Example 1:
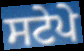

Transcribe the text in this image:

ਸਟੇਪੇ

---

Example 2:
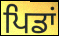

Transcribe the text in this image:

ਪਿਡਾਂ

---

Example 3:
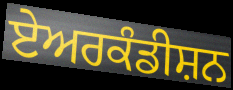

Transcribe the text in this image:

ਏਅਰਕੰਡੀਸ਼ਨ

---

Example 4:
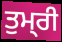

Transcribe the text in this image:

ਤੁਮ੍‍ਰੀ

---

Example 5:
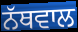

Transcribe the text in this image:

ਨੱਥਵਾਲ